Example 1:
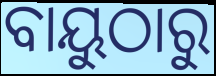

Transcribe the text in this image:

ବାୟୁଠାରୁ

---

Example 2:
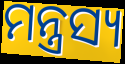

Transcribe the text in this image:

ମନ୍ତ୍ରସ୍ୟ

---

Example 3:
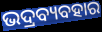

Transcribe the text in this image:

ଭଦ୍ରବ୍ୟବହାର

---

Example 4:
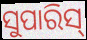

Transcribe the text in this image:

ସୁପାରିସ୍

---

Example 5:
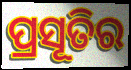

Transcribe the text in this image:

ପ୍ରସୂତିର